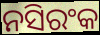
ନସିରଂକ